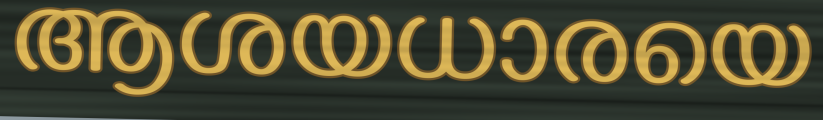
ആശയധാരയെ